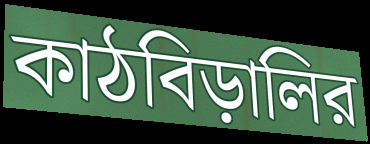
কাঠবিড়ালির